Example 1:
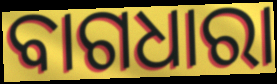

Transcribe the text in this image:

ବାଗଧାରା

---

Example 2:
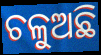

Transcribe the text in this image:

ଚଳୁଅଛି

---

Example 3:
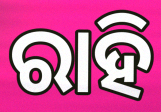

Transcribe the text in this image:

ରାହି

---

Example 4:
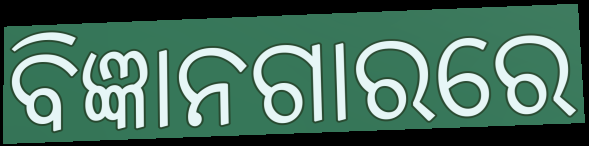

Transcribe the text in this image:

ବିଜ୍ଞାନଗାରରେ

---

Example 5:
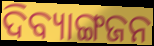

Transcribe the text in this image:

ଦିବ୍ୟାଙ୍ଗଜନ